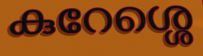
കുറേശ്ശെ